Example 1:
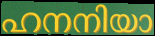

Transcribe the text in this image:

ഹനനിയാ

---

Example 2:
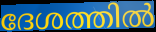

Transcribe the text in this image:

ദേശത്തിൽ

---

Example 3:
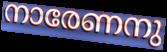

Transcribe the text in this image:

നാരേണനു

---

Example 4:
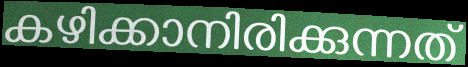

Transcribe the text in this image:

കഴിക്കാനിരിക്കുന്നത്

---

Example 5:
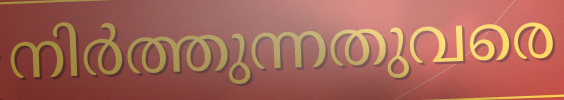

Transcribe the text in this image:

നിർത്തുന്നതുവരെ